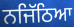
ਨਜਿੱਠਿਆ